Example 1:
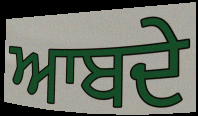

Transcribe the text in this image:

ਆਬਦੇ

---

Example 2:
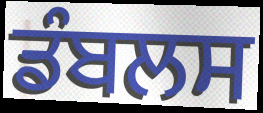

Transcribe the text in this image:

ਡੰਬਲਸ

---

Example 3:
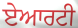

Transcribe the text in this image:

ਏਆਰਟੀ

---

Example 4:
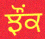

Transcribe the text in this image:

ਝੌਂਕ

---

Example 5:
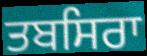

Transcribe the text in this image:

ਤਬਸਿਰਾ